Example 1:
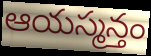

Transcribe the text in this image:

ఆయస్మన్తం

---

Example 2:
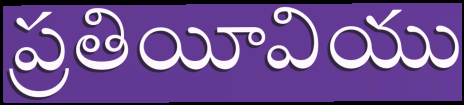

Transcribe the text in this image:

ప్రతియీవియు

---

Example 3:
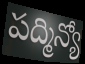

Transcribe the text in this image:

పద్మిన్యో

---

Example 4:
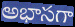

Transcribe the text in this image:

అభాసగా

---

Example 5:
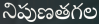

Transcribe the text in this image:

నిపుణతగల